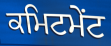
ਕਮਿਟਮੇਂਟ